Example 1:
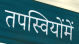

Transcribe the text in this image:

तपस्वियोंमें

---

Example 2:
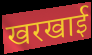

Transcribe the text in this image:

खरखाई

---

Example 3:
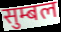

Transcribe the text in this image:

सुम्बल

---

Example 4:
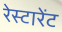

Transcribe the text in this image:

रेस्टारेंट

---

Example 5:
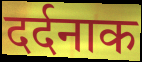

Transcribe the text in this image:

दर्दनाक